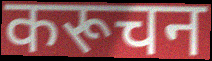
करूचन